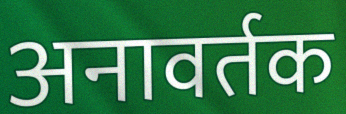
अनावर्तक